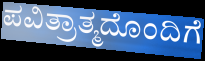
ಪವಿತ್ರಾತ್ಮದೊಂದಿಗೆ